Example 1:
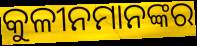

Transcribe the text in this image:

କୁଳୀନମାନଙ୍କର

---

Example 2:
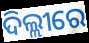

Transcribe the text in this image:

ଦିଲ୍ଲୀରେ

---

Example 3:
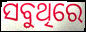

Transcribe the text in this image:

ସବୁଥିରେ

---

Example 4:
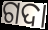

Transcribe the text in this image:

ଗଦା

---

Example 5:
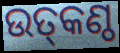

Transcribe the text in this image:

ଉତ୍‌କଣ୍ଠ